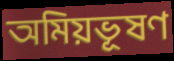
অমিয়ভূষণ